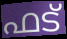
ഫട്